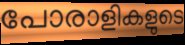
പോരാളികളുടെ